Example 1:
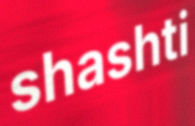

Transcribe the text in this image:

shashti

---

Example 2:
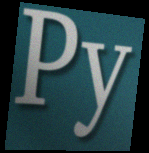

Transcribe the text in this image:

Py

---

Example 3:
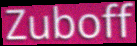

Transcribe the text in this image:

Zuboff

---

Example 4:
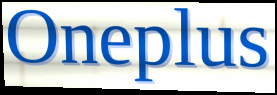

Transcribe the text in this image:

Oneplus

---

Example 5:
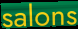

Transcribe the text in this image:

salons